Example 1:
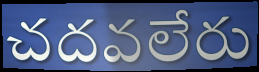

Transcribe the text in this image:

చదవలేరు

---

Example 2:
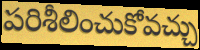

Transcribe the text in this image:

పరిశీలించుకోవచ్చు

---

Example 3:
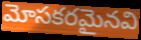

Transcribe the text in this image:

మోసకరమైనవి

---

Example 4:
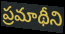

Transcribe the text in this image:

ప్రమాథీని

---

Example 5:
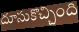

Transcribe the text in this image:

దూసుకొచ్చింది